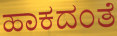
ಹಾಕದಂತೆ